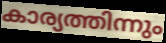
കാര്യത്തിന്നും